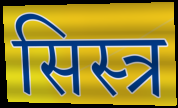
सिस्त्र